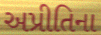
અપ્રીતિના